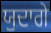
ਯੁਦਾਗੇ